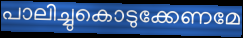
പാലിച്ചുകൊടുക്കേണമേ